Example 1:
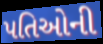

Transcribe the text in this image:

પતિઓની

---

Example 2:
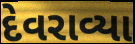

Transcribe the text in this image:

દેવરાવ્યા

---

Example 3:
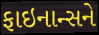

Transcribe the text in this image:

ફાઇનાન્સને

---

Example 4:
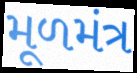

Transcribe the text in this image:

મૂળમંત્ર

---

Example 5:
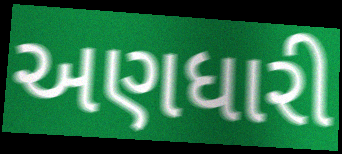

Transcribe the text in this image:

અણધારી